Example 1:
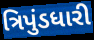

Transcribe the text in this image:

ત્રિપુંડધારી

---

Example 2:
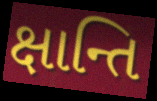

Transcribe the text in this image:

ક્ષાન્તિ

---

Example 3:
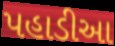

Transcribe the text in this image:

પહાડીઆ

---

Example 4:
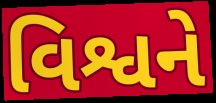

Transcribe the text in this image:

વિશ્વને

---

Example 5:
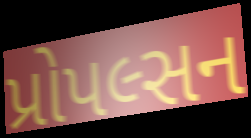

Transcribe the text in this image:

પ્રોપલ્સન